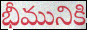
భీమునికి